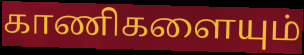
காணிகளையும்